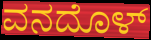
ವನದೊಳ್